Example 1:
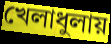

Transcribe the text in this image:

খেলাধুলায়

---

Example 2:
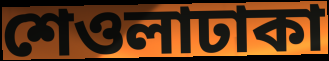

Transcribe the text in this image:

শেওলাঢাকা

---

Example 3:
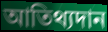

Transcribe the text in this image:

আতিথ্যদান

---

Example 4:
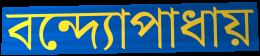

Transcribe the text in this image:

বন্দ্যোপাধায়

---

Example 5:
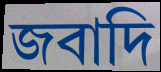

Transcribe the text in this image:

জবাদি